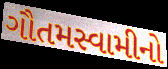
ગૌતમસ્વામીનો